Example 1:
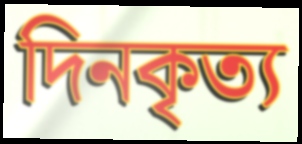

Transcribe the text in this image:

দিনকৃত্য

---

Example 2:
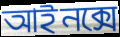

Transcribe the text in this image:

আইনক্সে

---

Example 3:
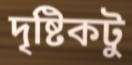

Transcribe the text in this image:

দৃষ্টিকটু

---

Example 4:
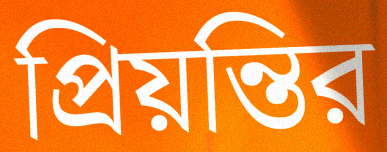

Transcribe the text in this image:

প্রিয়ন্তির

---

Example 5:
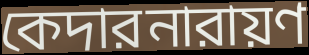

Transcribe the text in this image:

কেদারনারায়ণ